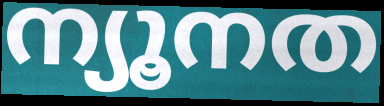
ന്യൂനത